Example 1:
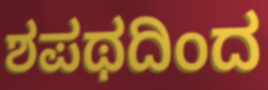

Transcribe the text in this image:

ಶಪಥದಿಂದ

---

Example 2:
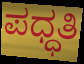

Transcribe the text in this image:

ಪಧ್ಧತಿ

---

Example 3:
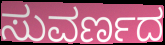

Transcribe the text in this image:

ಸುವರ್ಣದ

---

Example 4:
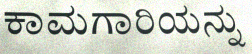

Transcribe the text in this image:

ಕಾಮಗಾರಿಯನ್ನು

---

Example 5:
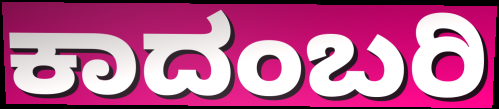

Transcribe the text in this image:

ಕಾದಂಬರಿ